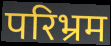
परिभ्रम